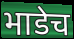
भाडेच